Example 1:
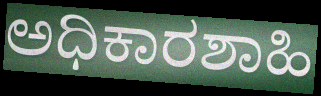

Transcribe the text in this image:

ಅಧಿಕಾರಶಾಹಿ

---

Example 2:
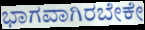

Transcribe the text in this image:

ಭಾಗವಾಗಿರಬೇಕೇ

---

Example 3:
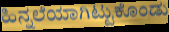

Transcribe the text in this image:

ಹಿನ್ನಲೆಯಾಗಿಟ್ಟುಕೊಂಡು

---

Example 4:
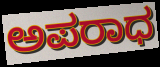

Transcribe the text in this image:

ಅಪರಾಧ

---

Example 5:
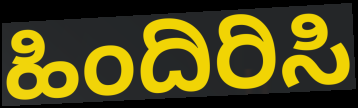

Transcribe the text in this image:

ಹಿಂದಿರಿಸಿ